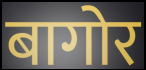
बागोर